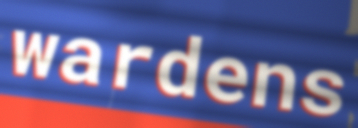
wardens